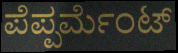
ಪೆಪ್ಪರ್ಮೆಂಟ್